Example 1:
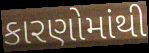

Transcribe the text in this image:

કારણોમાંથી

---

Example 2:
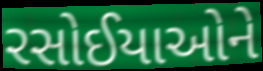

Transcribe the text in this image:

રસોઈયાઓને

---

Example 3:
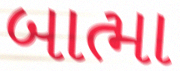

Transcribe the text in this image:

બાત્મા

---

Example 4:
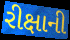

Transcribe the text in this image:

રીક્ષાની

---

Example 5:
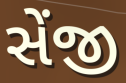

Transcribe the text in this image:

સેંજી